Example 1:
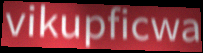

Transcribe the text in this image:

vikupficwa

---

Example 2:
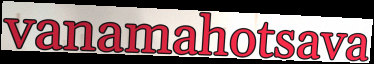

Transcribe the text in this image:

vanamahotsava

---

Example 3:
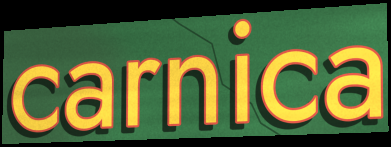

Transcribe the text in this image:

carnica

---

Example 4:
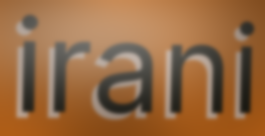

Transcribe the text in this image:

irani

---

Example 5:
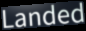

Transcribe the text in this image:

Landed